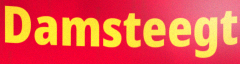
Damsteegt